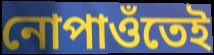
নোপাওঁতেই